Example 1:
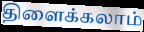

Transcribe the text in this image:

திளைக்கலாம்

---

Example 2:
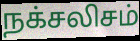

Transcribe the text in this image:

நக்சலிசம்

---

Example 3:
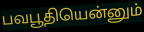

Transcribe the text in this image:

பவபூதியென்னும்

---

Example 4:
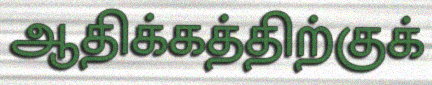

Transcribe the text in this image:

ஆதிக்கத்திற்குக்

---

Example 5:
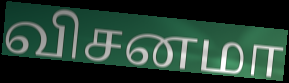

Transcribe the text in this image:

விசனமா